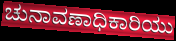
ಚುನಾವಣಾಧಿಕಾರಿಯು